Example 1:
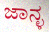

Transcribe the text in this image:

ಜಾನ್ಳ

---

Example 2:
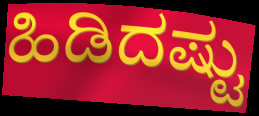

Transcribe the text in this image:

ಹಿಡಿದಷ್ಟು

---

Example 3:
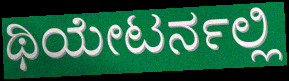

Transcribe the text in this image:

ಥಿಯೇಟರ್ನಲ್ಲಿ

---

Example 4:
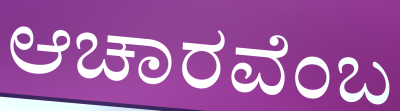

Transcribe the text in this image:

ಆಚಾರವೆಂಬ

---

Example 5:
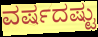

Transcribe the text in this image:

ವರ್ಷದಷ್ಟು